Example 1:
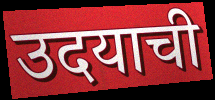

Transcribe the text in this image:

उदयाची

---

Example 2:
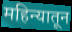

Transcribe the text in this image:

महिन्यातून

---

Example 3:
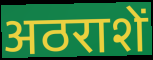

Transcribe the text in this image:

अठराशें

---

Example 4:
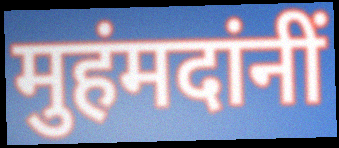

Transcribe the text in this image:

मुहंमदांनीं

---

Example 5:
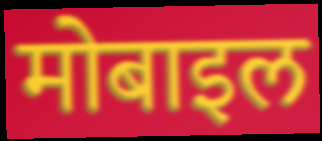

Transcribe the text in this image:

मोबाइल